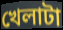
খেলাটা